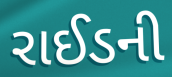
રાઈડની